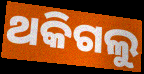
ଥକିଗଲୁ